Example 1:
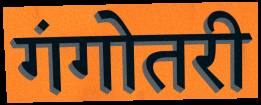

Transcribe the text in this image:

गंगोतरी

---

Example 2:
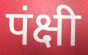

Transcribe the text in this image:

पंक्षी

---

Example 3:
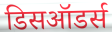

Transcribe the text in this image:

डिसऑडर्स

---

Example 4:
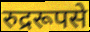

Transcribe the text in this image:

रुद्ररूपसे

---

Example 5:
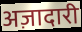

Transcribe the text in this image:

अज़ादारी